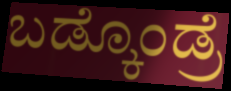
ಬಡ್ಕೊಂಡ್ರೆ